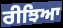
ਰੀਝਿਆ